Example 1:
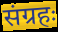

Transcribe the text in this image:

संग्रहः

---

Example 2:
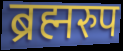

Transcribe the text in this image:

ब्रह्मरुप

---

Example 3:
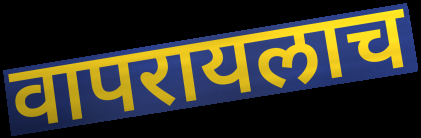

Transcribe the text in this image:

वापरायलाच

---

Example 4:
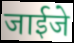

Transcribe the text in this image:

जाईजे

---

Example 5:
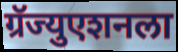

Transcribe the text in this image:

ग्रॅज्युएशनला